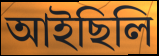
আইছিলি